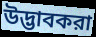
উদ্ভাবকরা